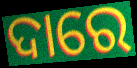
ଦାରେ